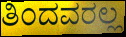
ತಿಂದವರಲ್ಲ